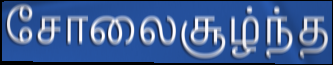
சோலைசூழ்ந்த